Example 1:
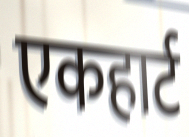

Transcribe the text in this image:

एकहार्ट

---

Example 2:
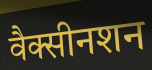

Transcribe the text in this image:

वैक्सीनशन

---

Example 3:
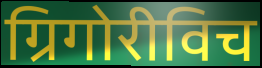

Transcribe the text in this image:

ग्रिगोरीविच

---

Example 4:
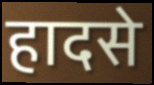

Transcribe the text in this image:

हादसे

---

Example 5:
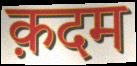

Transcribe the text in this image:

क़दम